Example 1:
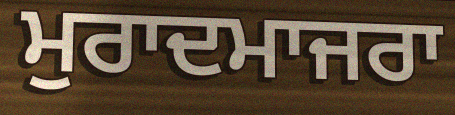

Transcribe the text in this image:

ਮੁਰਾਦਮਾਜਰਾ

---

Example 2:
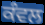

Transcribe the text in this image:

ਕੰਵਲ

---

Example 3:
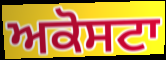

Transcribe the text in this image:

ਅਕੋਸਟਾ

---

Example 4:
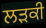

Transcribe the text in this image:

ਲੜਕੀ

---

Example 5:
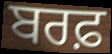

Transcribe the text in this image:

ਬਰਫ਼